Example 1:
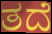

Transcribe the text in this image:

ತದೆ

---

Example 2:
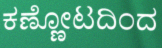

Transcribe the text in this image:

ಕಣ್ಣೋಟದಿಂದ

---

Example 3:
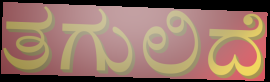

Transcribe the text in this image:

ತಗುಲಿದೆ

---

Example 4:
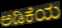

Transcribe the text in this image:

ಅಡಿಕೆಯ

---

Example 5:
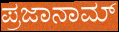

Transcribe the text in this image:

ಪ್ರಜಾನಾಮ್